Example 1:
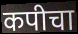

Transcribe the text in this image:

कपीचा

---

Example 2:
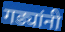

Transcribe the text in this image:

गड्यांनी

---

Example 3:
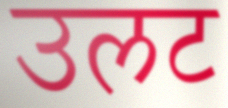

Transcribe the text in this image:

उलट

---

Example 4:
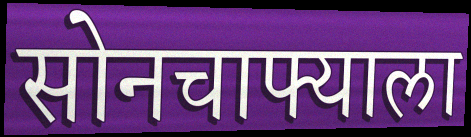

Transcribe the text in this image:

सोनचाफ्याला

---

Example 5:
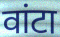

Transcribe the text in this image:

वांटा